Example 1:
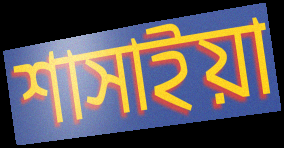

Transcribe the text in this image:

শাসাইয়া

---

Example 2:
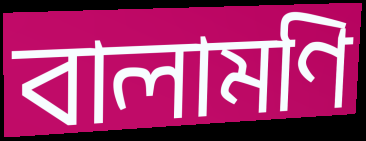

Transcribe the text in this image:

বালামণি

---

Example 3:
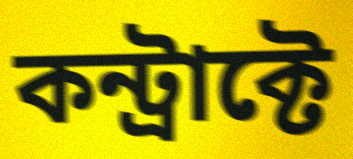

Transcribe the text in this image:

কন্ট্রাক্টে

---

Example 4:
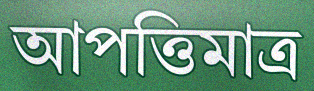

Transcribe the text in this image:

আপত্তিমাত্র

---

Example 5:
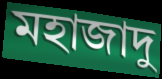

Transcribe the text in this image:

মহাজাদু